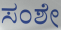
ಸಂಶೇ